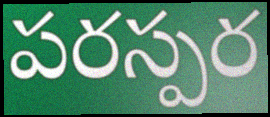
పరస్పర